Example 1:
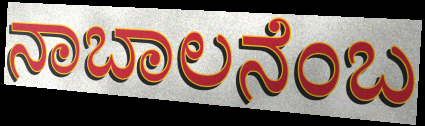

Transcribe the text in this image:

ನಾಬಾಲನೆಂಬ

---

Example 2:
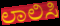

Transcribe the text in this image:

ಲಾಲಿಸಿ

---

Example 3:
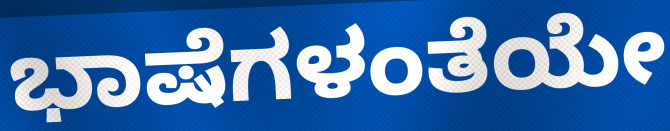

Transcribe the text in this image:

ಭಾಷೆಗಳಂತೆಯೇ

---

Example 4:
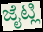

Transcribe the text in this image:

ಜೈಟ್ಲಿ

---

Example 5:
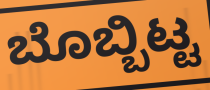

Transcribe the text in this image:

ಬೊಬ್ಬಿಟ್ಟ